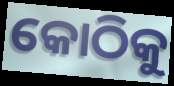
କୋଠିକୁ